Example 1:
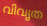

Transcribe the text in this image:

വിവൃത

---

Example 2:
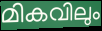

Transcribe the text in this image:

മികവിലും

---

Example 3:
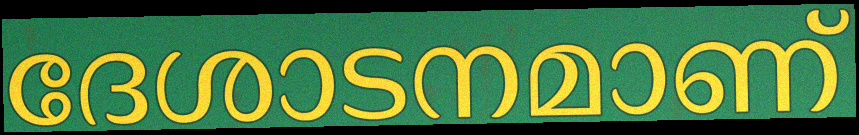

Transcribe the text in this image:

ദേശാടനമാണ്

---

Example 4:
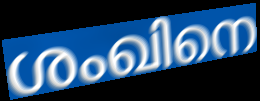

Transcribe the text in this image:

ശംഖിനെ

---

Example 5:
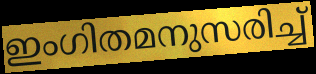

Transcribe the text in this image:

ഇംഗിതമനുസരിച്ച്